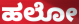
ಹಲೋ